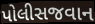
પોલીસજવાન